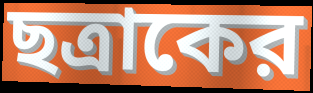
ছত্রাকের